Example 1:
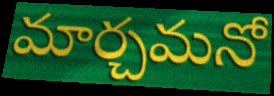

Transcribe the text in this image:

మార్చమనో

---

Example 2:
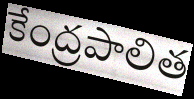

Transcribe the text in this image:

కేంద్రపాలిత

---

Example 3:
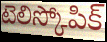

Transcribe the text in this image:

టెలిస్కోపిక్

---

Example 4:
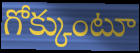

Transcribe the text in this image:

గోక్కుంటూ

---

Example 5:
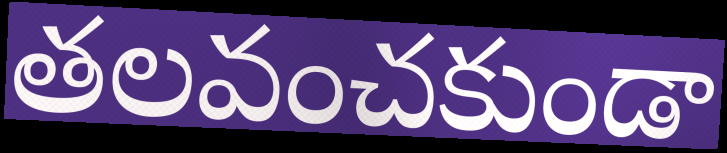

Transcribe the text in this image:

తలవంచకుండా